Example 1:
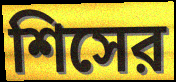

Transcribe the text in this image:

শিসের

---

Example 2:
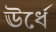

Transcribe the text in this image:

ঊর্ধে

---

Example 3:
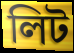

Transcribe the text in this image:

লিট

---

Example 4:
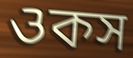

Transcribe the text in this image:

ওকস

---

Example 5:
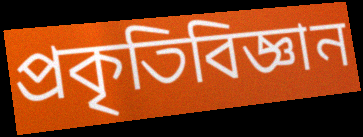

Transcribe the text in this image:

প্রকৃতিবিজ্ঞান